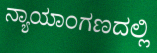
ನ್ಯಾಯಾಂಗಣದಲ್ಲಿ